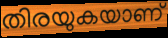
തിരയുകയാണ്